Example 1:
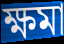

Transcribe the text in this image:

ক্ষমা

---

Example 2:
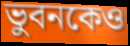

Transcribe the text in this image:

ভুবনকেও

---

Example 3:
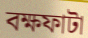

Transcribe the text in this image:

বক্ষফাটা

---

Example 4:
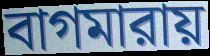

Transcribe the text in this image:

বাগমারায়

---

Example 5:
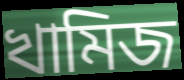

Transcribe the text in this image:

খামিজ